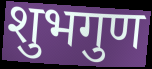
शुभगुण